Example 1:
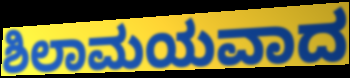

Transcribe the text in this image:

ಶಿಲಾಮಯವಾದ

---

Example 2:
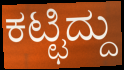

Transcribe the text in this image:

ಕಟ್ಟಿದ್ದು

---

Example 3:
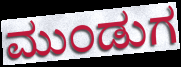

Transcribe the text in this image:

ಮುಂಡುಗ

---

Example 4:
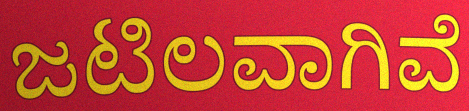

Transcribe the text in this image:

ಜಟಿಲವಾಗಿವೆ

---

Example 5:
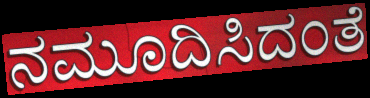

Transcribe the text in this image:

ನಮೂದಿಸಿದಂತೆ